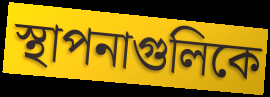
স্থাপনাগুলিকে